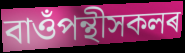
বাওঁপন্থীসকলৰ